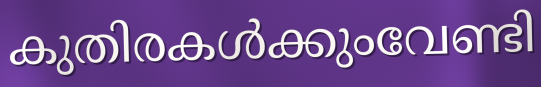
കുതിരകൾക്കുംവേണ്ടി